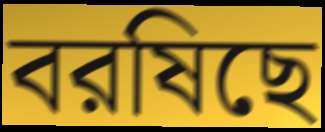
বরষিছে